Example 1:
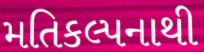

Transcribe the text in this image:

મતિકલ્પનાથી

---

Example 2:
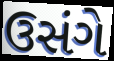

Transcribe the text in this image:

ઉસંગે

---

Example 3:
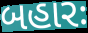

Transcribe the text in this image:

બહારઃ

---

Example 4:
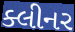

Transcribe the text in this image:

ક્લીનર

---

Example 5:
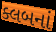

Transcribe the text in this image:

ક્લબનાં